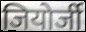
जियोर्जी